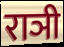
राञी